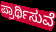
ಪ್ರಾರ್ಥಿಸುವೆ